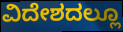
ವಿದೇಶದಲ್ಲೂ